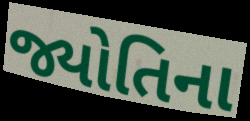
જ્યોતિના